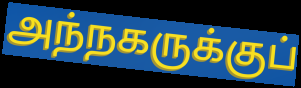
அந்நகருக்குப்